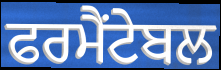
ਫਰਮੈਂਟੇਬਲ